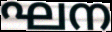
ഘന